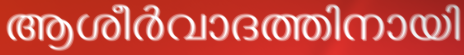
ആശീർവാദത്തിനായി